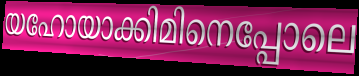
യഹോയാക്കിമിനെപ്പോലെ